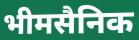
भीमसैनिक